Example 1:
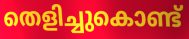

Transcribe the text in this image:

തെളിച്ചുകൊണ്ട്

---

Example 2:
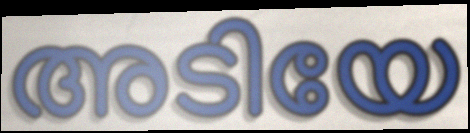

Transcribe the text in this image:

അടിയേ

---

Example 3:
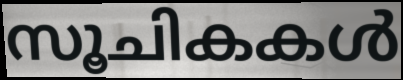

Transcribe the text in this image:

സൂചികകൾ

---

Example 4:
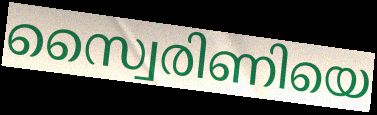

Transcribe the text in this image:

സ്വൈരിണിയെ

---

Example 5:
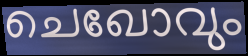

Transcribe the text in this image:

ചെഖോവും